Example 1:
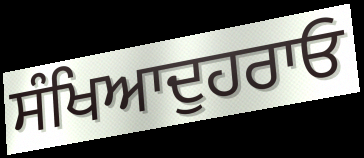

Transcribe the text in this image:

ਸੰਖਿਆਦੁਹਰਾਓ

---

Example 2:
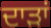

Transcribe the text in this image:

ਦਾੜਾਂ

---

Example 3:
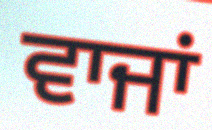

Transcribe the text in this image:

ਵਾਜਾਂ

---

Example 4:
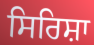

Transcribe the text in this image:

ਸਿਰਿਸ਼ਾ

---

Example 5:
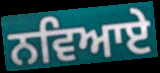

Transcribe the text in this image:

ਨਵਿਆਏ